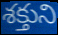
శక్తుని